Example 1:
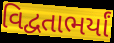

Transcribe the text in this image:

વિદ્વતાભર્યાં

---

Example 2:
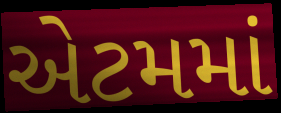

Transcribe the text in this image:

એટમમાં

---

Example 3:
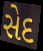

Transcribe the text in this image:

સેદ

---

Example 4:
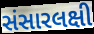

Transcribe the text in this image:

સંસારલક્ષી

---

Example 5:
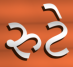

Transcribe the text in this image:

રુટે